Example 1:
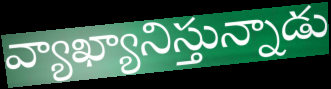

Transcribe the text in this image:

వ్యాఖ్యానిస్తున్నాడు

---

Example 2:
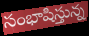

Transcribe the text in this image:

సంభాషిస్తున్న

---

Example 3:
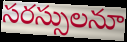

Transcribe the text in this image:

సరస్సులనూ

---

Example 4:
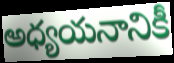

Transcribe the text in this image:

అధ్యయనానికీ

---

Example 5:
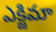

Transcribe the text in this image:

ఎక్జిమా